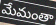
మేమంతా